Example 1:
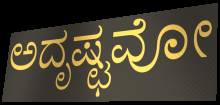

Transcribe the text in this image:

ಅದೃಷ್ಟವೋ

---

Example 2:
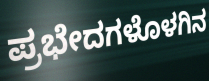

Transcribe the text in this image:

ಪ್ರಭೇದಗಳೊಳಗಿನ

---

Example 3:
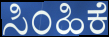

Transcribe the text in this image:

ಸಿಂಹಿಕೆ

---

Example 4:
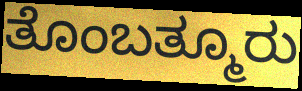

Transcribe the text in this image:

ತೊಂಬತ್ಮೂರು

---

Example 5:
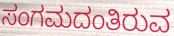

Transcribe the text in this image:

ಸಂಗಮದಂತಿರುವ